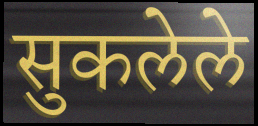
सुकलेले